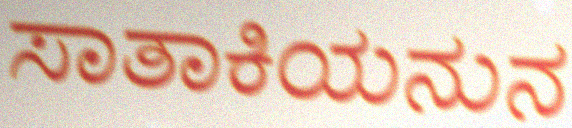
ಸಾತಾಕಿಯನುನ